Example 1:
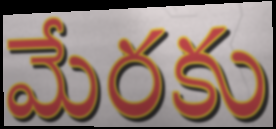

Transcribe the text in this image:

మేరకు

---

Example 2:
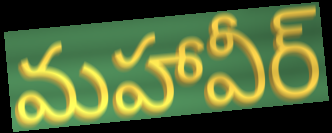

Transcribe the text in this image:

మహావీర్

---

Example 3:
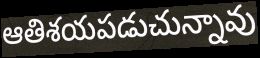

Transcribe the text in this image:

ఆతిశయపడుచున్నావు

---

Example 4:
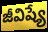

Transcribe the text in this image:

జీవిష్యే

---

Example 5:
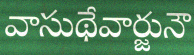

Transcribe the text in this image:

వాసుథేవార్జునౌ